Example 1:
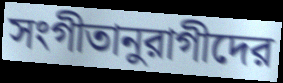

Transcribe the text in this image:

সংগীতানুরাগীদের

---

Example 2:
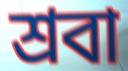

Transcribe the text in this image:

শ্রবা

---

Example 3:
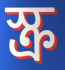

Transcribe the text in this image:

স্ক্র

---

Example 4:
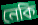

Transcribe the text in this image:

নেকি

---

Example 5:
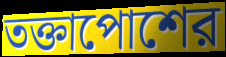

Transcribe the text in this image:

তক্তাপোশের